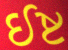
ઈષ્ટ